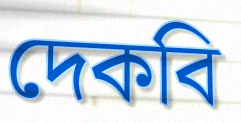
দেকবি